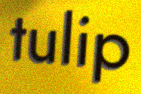
tulip